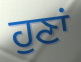
ਹੁਣਾਂ